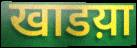
खाडय़ा